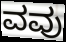
ವವು